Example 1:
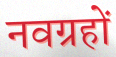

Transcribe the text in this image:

नवग्रहों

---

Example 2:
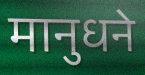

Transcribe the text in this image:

मानुधने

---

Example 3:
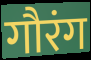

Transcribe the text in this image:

गौरंग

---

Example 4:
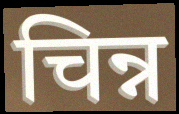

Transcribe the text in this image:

चिन्न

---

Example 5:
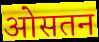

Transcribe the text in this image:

ओसतन